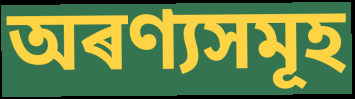
অৰণ্যসমূহ